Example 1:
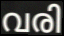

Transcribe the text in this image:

വരി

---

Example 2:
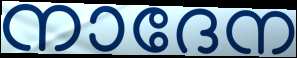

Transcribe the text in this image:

നാദേന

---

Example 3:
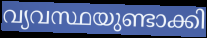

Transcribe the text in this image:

വ്യവസ്ഥയുണ്ടാക്കി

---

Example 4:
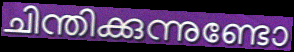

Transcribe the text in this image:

ചിന്തിക്കുന്നുണ്ടോ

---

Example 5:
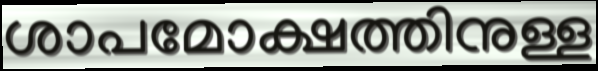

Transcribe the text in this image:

ശാപമോക്ഷത്തിനുള്ള